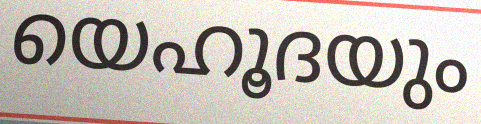
യെഹൂദയും